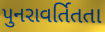
પુનરાવર્તિતતા